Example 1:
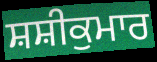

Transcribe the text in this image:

ਸ਼ਸ਼ੀਕੁਮਾਰ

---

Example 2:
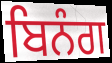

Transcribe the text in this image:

ਬਿਨੰਗ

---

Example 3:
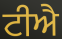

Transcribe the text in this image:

ਟੀਐ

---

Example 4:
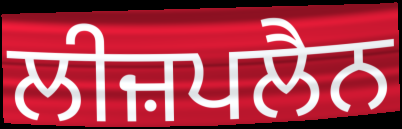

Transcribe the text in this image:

ਲੀਜ਼ਪਲੈਨ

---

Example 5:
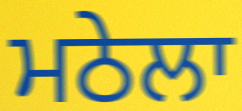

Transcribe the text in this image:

ਮਠੇਲਾ